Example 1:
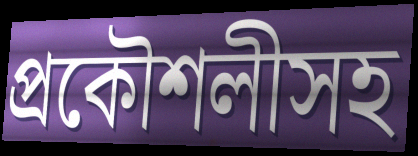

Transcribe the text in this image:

প্রকৌশলীসহ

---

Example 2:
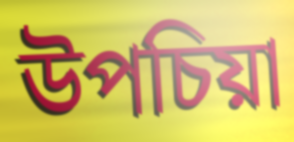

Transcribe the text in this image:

উপচিয়া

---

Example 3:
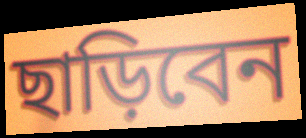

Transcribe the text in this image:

ছাড়িবেন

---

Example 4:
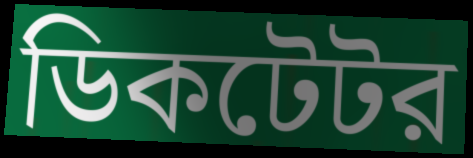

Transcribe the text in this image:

ডিকটেটর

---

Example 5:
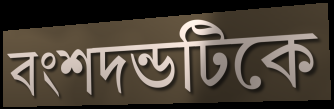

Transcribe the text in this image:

বংশদন্ডটিকে